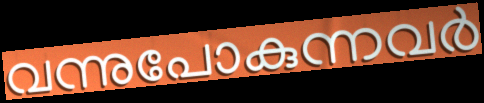
വന്നുപോകുന്നവർ